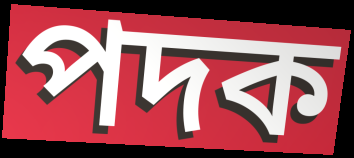
পদক